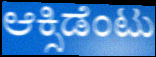
ಆಕ್ಸಿಡೆಂಟು